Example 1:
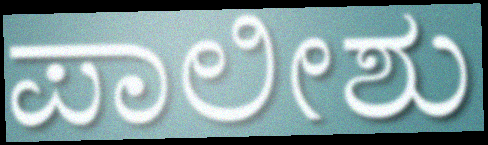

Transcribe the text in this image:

ಪಾಲೀಶು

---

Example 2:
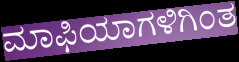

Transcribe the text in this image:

ಮಾಫಿಯಾಗಳಿಗಿಂತ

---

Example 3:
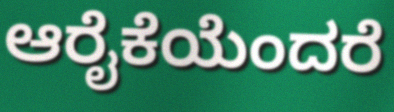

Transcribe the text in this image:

ಆರೈಕೆಯೆಂದರೆ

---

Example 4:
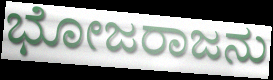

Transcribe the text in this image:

ಭೋಜರಾಜನು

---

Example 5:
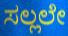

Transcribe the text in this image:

ಸಲ್ಲಲೇ